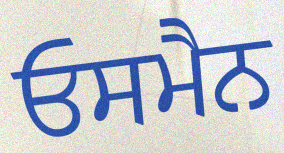
ਓਸਮੈਨ